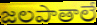
జలపాతాలే